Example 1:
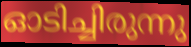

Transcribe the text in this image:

ഓടിച്ചിരുന്നു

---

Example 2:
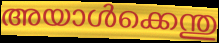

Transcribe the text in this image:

അയാൾക്കെന്തു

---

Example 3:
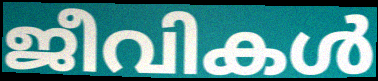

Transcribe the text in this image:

ജീവികൾ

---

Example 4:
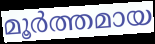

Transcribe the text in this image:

മൂർത്തമായ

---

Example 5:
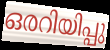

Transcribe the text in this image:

ഒരറിയിപ്പു